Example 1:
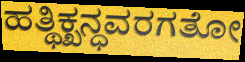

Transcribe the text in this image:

ಹತ್ಥಿಕ್ಖನ್ಧವರಗತೋ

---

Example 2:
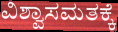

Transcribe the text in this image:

ವಿಶ್ವಾಸಮತಕ್ಕೆ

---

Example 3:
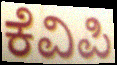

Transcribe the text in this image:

ಕೆವಿಪಿ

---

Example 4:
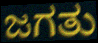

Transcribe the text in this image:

ಜಗತು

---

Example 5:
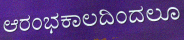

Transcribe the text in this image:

ಆರಂಭಕಾಲದಿಂದಲೂ